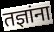
तज्ञांना